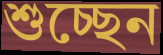
শুচ্ছেন